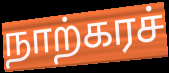
நாற்கரச்